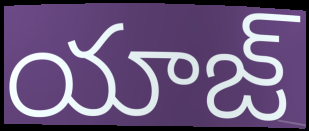
యాజ్